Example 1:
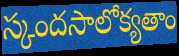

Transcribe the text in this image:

స్కందసాలోక్యతాం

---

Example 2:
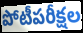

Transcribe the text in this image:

పోటీపరీక్షల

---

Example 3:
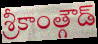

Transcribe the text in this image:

శ్రీకాంత్గౌడ్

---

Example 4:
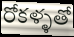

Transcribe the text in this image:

రోకళ్ళతో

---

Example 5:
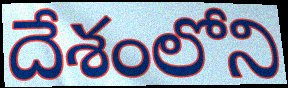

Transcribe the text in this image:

దేశంలోని